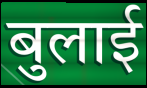
बुलाई